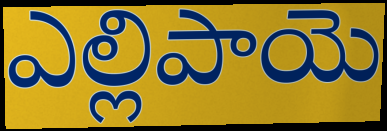
ఎల్లిపాయె